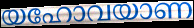
യഹോവയാണ